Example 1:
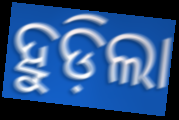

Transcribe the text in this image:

ହୁଡ଼ିଲା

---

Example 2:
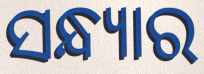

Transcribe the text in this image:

ସନ୍ଧ୍ୟାର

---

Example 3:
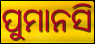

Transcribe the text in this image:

ପୁମାନସି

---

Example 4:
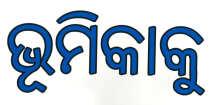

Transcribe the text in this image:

ଭୂମିକାକୁ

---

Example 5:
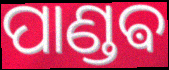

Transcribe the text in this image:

ପାଣ୍ଡଵ